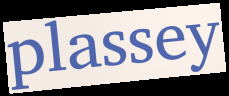
plassey